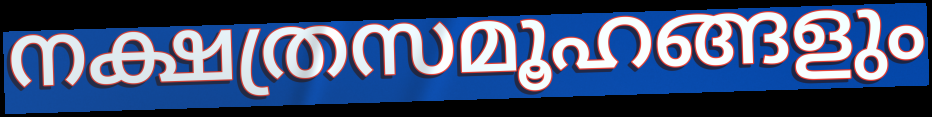
നക്ഷത്രസമൂഹങ്ങളും